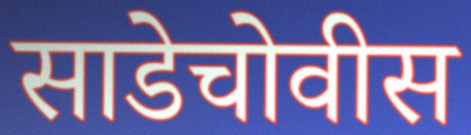
साडेचोवीस